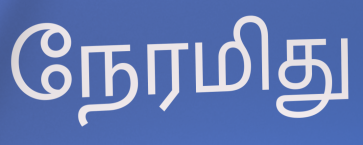
நேரமிது